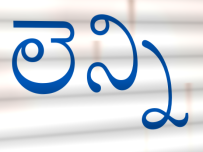
లెన్ని